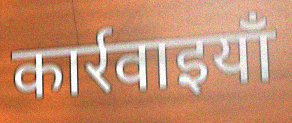
कार्रवाइयाँ